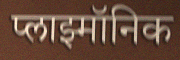
प्लाझ्मॉनिक